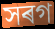
সৰগ